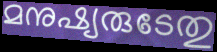
മനുഷ്യരുടേതു